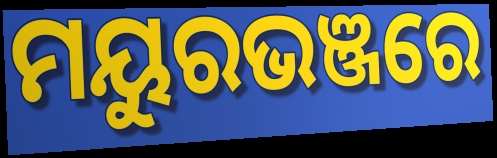
ମୟୁରଭଞ୍ଜରେ